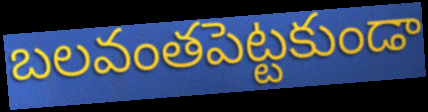
బలవంతపెట్టకుండా